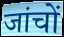
जांचों